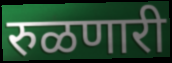
रुळणारी